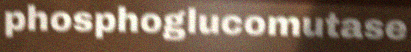
phosphoglucomutase